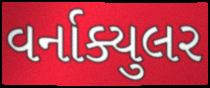
વર્નાક્યુલર